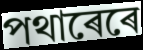
পথাৰেৰে